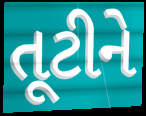
તૂટીને